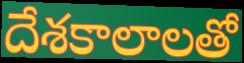
దేశకాలాలతో